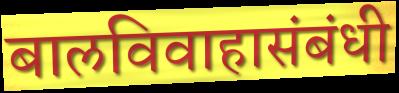
बालविवाहासंबंधी